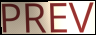
PREV